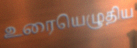
உரையெழுதிய